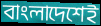
বাংলাদেশেই